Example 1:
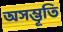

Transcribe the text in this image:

অসম্ভূতি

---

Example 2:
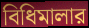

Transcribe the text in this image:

বিধিমালার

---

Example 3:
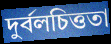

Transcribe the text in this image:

দুর্বলচিত্ততা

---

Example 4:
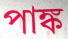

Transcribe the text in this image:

পাঙ্ক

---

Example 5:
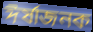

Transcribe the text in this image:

ঈর্ষাজনক